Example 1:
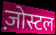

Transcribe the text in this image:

ज़ोस्टल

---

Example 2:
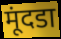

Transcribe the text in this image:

मूंदडा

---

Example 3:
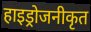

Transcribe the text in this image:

हाइड्रोजनीकृत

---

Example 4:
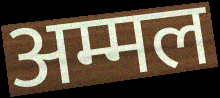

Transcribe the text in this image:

अम्मल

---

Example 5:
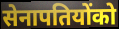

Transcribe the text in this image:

सेनापतियोंको